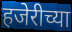
हजेरीच्या